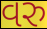
વરુ